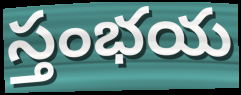
స్తంభయ